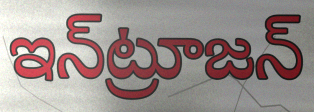
ఇన్‌ట్రూజన్